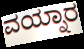
ವಯ್ನಾರ